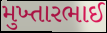
મુખ્તારભાઈ